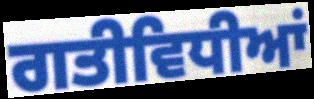
ਗਤੀਵਿਧੀਆਂ